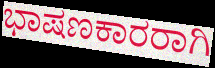
ಭಾಷಣಕಾರರಾಗಿ